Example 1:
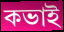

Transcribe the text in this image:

কভাই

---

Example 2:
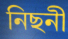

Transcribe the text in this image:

নিছনী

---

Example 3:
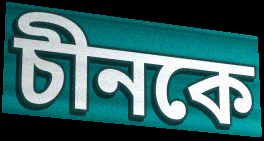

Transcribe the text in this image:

চীনকে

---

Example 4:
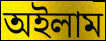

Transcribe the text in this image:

অইলাম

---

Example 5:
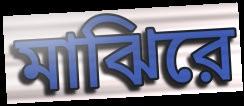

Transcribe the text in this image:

মাঝিরে